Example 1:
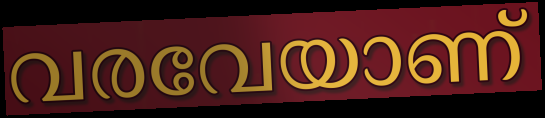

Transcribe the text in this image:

വരവേയാണ്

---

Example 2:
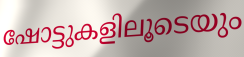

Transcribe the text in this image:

ഷോട്ടുകളിലൂടെയും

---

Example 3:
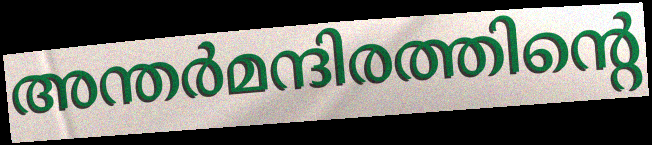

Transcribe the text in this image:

അന്തർമന്ദിരത്തിന്റെ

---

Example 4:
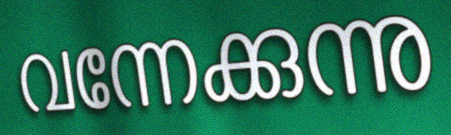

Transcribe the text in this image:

വന്നേക്കുന്നു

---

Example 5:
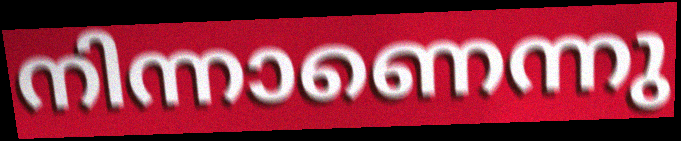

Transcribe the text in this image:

നിന്നാണെന്നു